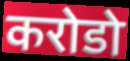
करोडो